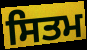
ਸਿਤਮ